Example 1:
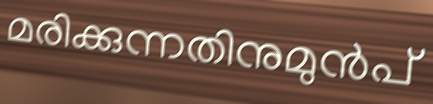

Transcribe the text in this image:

മരിക്കുന്നതിനുമുൻപ്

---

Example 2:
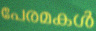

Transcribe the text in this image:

പേരമകൾ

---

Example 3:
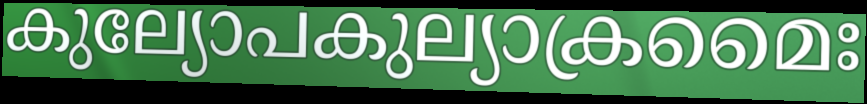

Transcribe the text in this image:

കുല്യോപകുല്യാക്രമൈഃ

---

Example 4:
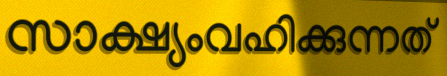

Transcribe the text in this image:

സാക്ഷ്യംവഹിക്കുന്നത്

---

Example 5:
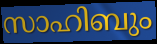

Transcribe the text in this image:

സാഹിബും